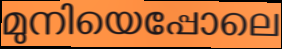
മുനിയെപ്പോലെ